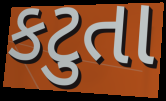
કટુતા